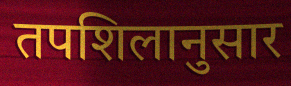
तपशिलानुसार